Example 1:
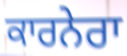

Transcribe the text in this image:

ਕਾਰਨੇਰਾ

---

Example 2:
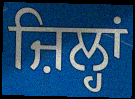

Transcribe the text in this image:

ਜ਼ਿਲ੍ਹਾਂ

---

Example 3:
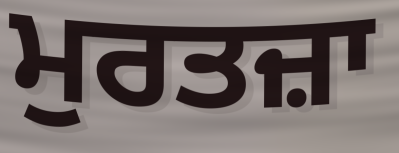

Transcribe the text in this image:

ਮੁਰਤਜ਼ਾ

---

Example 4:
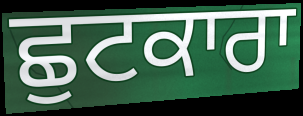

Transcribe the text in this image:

ਛੁਟਕਾਰਾ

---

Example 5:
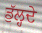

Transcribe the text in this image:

ਡੁੱਲ੍ਹਦੇ